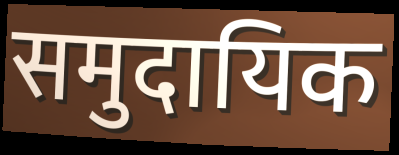
समुदायिक